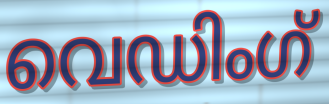
വെഡിംഗ്